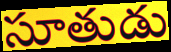
సూతుడు